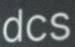
dcs